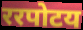
ररपोटय